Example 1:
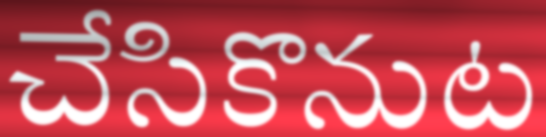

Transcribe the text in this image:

చేసికొనుట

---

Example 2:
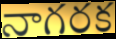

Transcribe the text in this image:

నాగరక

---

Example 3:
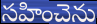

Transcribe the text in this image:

సహించెను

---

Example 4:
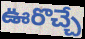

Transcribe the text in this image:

ఊరొచ్చే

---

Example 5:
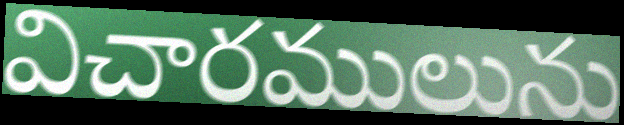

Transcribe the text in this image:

విచారములును